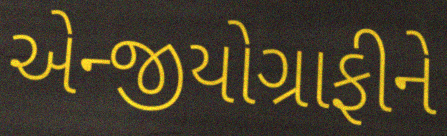
એન્જીયોગ્રાફીને